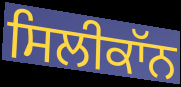
ਸਿਲੀਕਾੱਨ